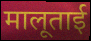
मालूताई